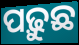
ପଢ଼ୁଛ